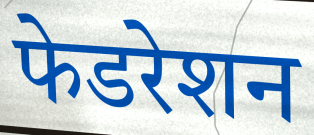
फेडरेशन